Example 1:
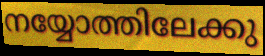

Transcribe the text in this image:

നയ്യോത്തിലേക്കു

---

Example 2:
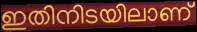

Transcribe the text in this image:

ഇതിനിടയിലാണ്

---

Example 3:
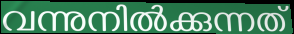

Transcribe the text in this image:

വന്നുനിൽക്കുന്നത്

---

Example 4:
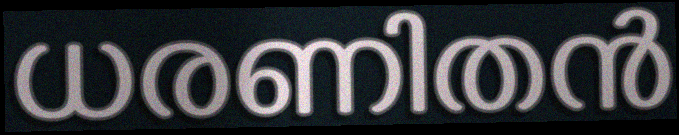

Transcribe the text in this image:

ധരണിതൻ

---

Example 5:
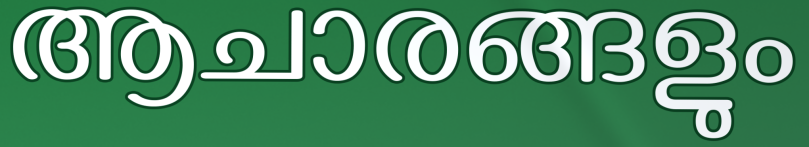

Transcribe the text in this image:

ആചാരങ്ങളും